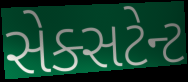
સેક્સટેન્ટ